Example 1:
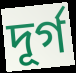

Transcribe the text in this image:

দূৰ্গ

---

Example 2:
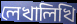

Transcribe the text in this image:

লেখালিখি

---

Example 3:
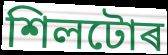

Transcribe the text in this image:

শিলটোৰ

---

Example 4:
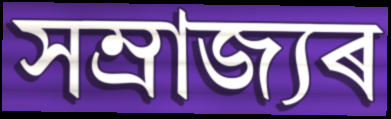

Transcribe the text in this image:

সম্ৰাজ্যৰ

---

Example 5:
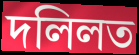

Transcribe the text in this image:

দলিলত